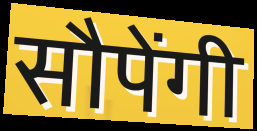
सौपेंगी